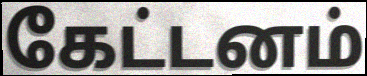
கேட்டனம்